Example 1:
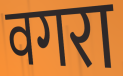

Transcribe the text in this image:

वगरा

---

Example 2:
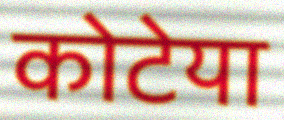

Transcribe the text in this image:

कोटेया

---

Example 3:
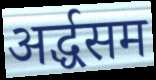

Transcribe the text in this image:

अर्द्धसम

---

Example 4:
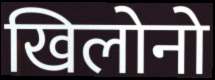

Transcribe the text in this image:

खिलोनो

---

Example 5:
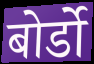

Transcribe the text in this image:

बोर्डो